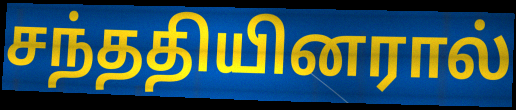
சந்ததியினரால்